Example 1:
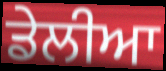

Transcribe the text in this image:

ਡੇਲੀਆ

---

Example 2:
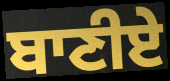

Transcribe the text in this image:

ਬਾਣੀਏ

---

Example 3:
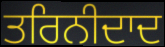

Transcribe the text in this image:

ਤਰਿਨੀਦਾਦ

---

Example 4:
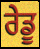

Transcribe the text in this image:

ਰੇਡੂ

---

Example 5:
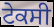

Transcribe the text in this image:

ਟੇਕਸੀ